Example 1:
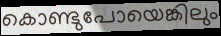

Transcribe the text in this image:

കൊണ്ടുപോയെങ്കിലും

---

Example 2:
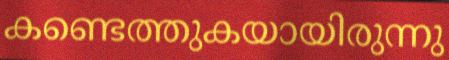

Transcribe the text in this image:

കണ്ടെത്തുകയായിരുന്നു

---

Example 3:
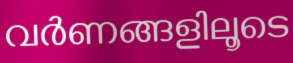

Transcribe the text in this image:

വർണങ്ങളിലൂടെ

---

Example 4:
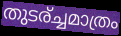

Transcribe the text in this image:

തുടര്ച്ചമാത്രം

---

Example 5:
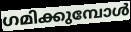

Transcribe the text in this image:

ഗമിക്കുമ്പോൾ